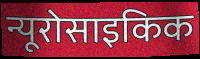
न्यूरोसाइकिक